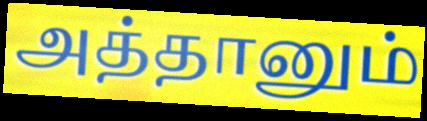
அத்தானும்